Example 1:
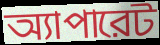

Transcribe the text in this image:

অ্যাপারেট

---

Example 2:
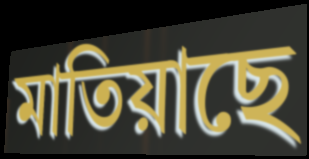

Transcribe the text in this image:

মাতিয়াছে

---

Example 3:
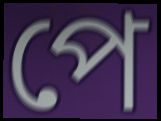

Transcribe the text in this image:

পে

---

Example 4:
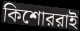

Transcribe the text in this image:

কিশোররাই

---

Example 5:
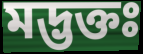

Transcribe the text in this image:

মদ্ভক্তঃ